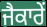
ਜੈਕਾਰੇਂ